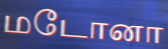
மடோனா